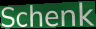
Schenk